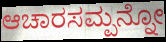
ಆಚಾರಸಮ್ಪನ್ನೋ